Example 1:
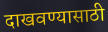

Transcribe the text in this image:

दाखवण्यासाठी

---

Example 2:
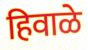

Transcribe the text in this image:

हिवाळे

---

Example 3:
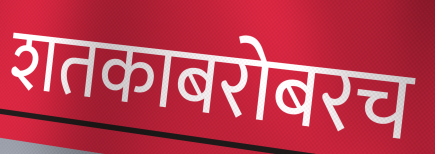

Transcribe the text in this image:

शतकाबरोबरच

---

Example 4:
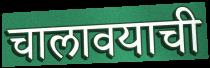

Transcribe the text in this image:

चालावयाची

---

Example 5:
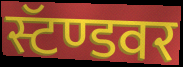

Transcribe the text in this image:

स्टॅण्डवर